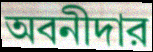
অবনীদার